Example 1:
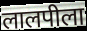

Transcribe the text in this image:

लालपीला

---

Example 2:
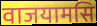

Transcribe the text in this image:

वाजयामसि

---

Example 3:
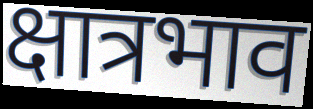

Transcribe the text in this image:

क्षात्रभाव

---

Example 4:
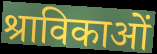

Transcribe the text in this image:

श्राविकाओं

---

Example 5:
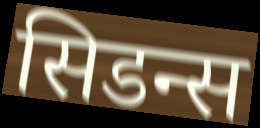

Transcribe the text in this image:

सिडन्स